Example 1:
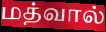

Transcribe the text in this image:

மத்வால்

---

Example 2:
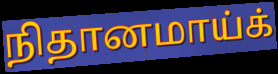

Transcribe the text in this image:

நிதானமாய்க்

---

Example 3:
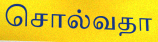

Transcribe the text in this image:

சொல்வதா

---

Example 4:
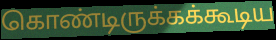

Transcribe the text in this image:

கொண்டிருக்கக்கூடிய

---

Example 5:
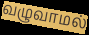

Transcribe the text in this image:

வழுவாமல்